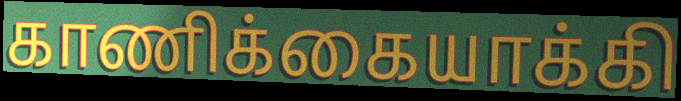
காணிக்கையாக்கி